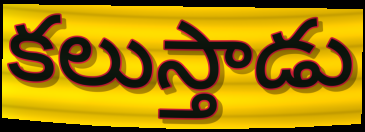
కలుస్తాడు